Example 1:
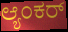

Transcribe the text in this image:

ಆ್ಯಂಕರ್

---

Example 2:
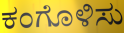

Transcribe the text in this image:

ಕಂಗೊಳಿಸು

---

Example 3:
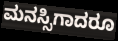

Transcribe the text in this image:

ಮನಸ್ಸಿಗಾದರೂ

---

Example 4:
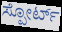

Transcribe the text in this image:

ಸ್ಪೋರ್ಟ್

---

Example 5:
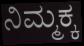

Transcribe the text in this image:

ನಿಮ್ಮಕ್ಕ